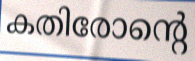
കതിരോന്റെ